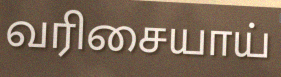
வரிசையாய்